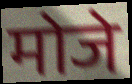
मोजे